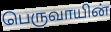
பெருவாயின்